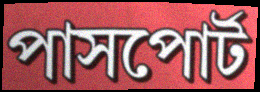
পাসপোর্ট